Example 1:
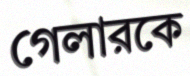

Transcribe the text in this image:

গেলারকে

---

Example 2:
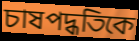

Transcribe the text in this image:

চাষপদ্ধতিকে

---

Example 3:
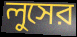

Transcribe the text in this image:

লুসের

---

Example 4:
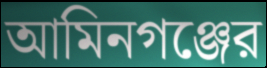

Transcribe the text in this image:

আমিনগঞ্জের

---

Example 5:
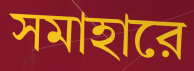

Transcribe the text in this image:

সমাহারে